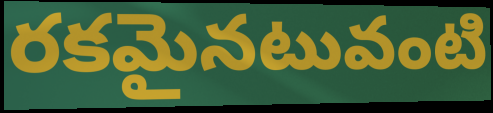
రకమైనటువంటి